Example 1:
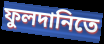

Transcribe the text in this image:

ফুলদানিতে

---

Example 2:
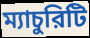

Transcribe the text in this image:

ম্যাচুরিটি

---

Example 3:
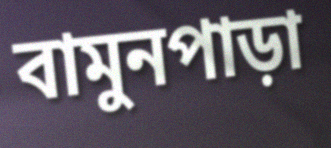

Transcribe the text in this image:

বামুনপাড়া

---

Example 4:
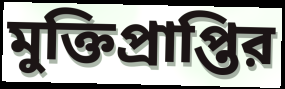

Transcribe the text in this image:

মুক্তিপ্রাপ্তির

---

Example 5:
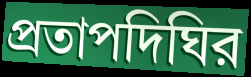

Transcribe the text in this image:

প্রতাপদিঘির